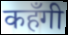
कहँगी